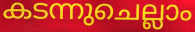
കടന്നുചെല്ലാം